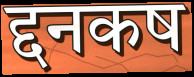
द्दनकष